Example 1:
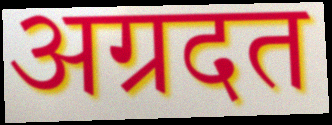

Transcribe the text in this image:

अग्रदत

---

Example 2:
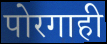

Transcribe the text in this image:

पोरगाही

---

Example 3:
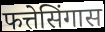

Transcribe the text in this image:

फत्तेसिंगास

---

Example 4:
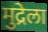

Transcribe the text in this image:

मुद्रेला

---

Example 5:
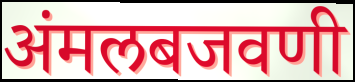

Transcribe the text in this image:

अंमलबजवणी